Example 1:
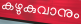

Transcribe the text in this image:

കഴുകുവാനും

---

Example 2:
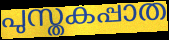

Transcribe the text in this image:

പുസ്തകപ്പാത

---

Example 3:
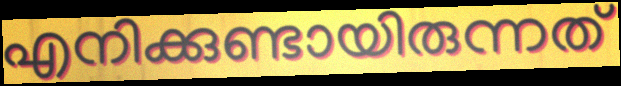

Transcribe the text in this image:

എനിക്കുണ്ടായിരുന്നത്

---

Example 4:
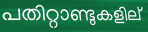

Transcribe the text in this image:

പതിറ്റാണ്ടുകളില്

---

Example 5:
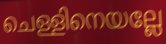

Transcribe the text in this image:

ചെള്ളിനെയല്ലേ